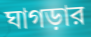
ঘাগড়ার